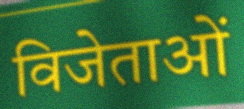
विजेताओं